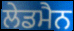
ਲੇਡਮੈਨ